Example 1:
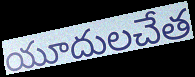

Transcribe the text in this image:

యూదులచేత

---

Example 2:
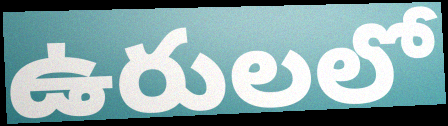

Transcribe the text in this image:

ఉరులలో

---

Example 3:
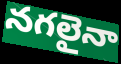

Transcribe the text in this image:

నగలైనా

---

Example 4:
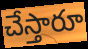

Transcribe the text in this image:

చేస్తారూ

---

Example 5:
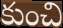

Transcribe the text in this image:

కుంచి